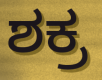
ಶಕ್ರ